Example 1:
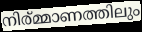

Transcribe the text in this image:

നിര്മ്മാണത്തിലും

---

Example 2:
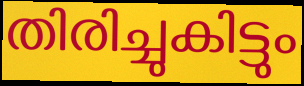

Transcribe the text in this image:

തിരിച്ചുകിട്ടും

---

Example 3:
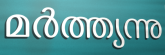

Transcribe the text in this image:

മർത്ത്യന്നു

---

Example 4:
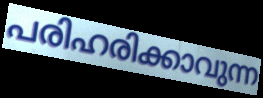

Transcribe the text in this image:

പരിഹരിക്കാവുന്ന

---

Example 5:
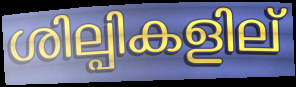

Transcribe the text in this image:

ശില്പികളില്